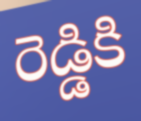
రెడ్డికి